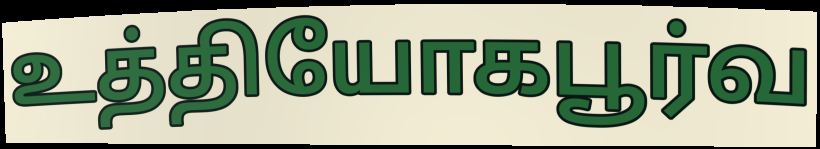
உத்தியோகபூர்வ